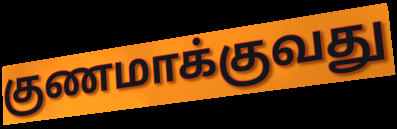
குணமாக்குவது